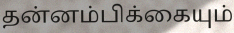
தன்னம்பிக்கையும்